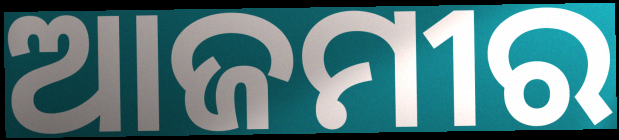
ଆଜମୀର